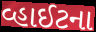
વ્હાઈટના